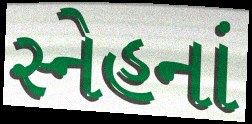
સ્નેહનાં